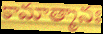
కామాత్మానః